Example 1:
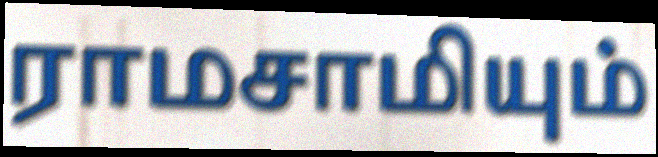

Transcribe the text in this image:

ராமசாமியும்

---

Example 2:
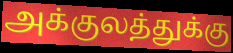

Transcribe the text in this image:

அக்குலத்துக்கு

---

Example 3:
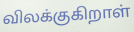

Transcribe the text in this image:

விலக்குகிறாள்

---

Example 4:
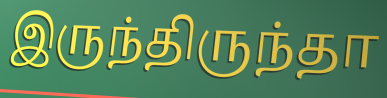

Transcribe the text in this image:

இருந்திருந்தா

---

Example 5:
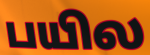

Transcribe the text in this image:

பயில